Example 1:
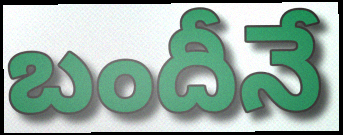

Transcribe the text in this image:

బందీనే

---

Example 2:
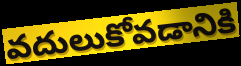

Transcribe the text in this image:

వదులుకోవడానికి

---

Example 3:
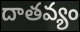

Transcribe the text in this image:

దాతవ్యం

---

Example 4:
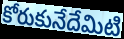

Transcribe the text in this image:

కోరుకునేదేమిటి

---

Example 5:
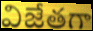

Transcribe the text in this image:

విజేతగా